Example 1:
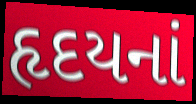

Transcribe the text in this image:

હૃદયનાં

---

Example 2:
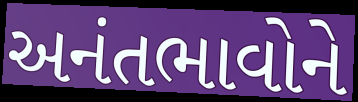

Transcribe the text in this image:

અનંતભાવોને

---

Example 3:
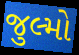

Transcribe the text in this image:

જુલ્મો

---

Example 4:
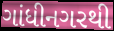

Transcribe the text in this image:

ગાંધીનગરથી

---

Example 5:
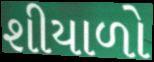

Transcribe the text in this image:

શીયાળો